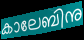
കാലേബിനു